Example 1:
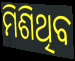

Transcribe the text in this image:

ମିଶିଥିବ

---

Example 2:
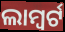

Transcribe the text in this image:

ଲାମ୍ବର୍ଟ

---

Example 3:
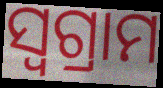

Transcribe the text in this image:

ସ୍ୱଗ୍ରାମ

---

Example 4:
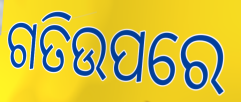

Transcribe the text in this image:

ଗତିଉପରେ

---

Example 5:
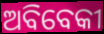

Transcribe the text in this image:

ଅବିବେକୀ